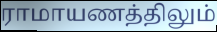
ராமாயணத்திலும்